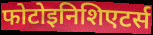
फोटोइनिशिएटर्स